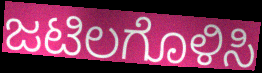
ಜಟಿಲಗೊಳಿಸಿ